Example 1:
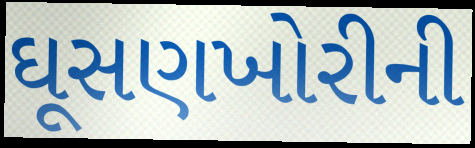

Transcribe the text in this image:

ઘૂસણખોરીની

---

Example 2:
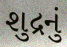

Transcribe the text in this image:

શુદ્રનું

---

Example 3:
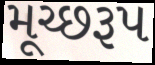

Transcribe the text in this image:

મૂચ્છરૂપ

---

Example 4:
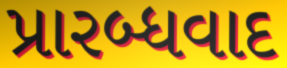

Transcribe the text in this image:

પ્રારબ્ધવાદ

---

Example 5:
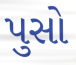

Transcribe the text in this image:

પુસો